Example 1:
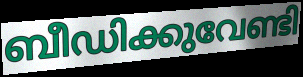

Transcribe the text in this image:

ബീഡിക്കുവേണ്ടി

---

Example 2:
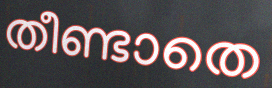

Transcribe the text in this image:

തീണ്ടാതെ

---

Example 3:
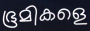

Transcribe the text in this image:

ഭൂമികളെ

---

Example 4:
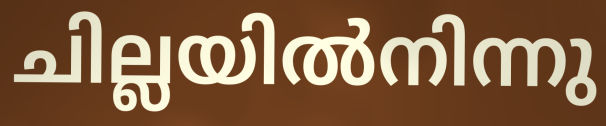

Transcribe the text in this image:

ചില്ലയിൽനിന്നു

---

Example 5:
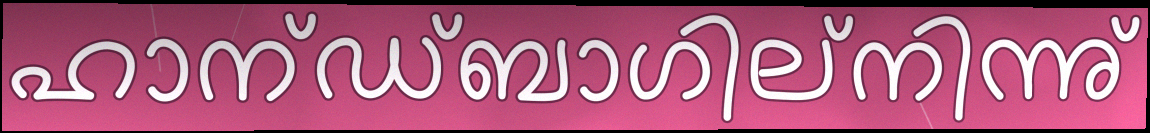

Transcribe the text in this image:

ഹാന്ഡ്ബാഗില്നിന്നു്